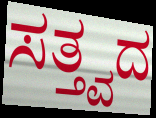
ಸತ್ತ್ವದ